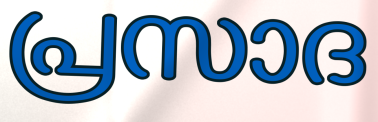
പ്രസാദ